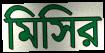
মিসির